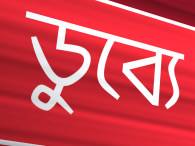
ডুব্যে